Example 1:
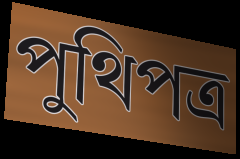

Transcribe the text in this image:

পুথিপত্র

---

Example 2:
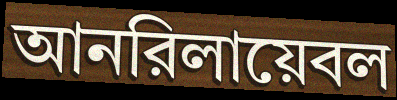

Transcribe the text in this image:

আনরিলায়েবল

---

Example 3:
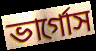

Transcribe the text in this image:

ভার্গোস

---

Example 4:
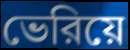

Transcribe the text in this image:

ভেরিয়ে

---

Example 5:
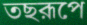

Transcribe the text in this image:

তছরূপে